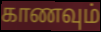
காணவும்